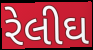
રેલીઘ